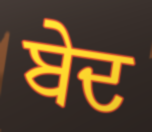
ਬੇਦ